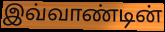
இவ்வாண்டின்